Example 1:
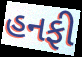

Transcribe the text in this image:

હનફી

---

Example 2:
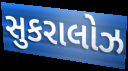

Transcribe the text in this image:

સુકરાલોઝ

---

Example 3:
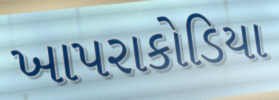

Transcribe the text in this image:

ખાપરાકોડિયા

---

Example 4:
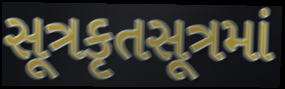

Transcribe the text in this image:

સૂત્રકૃતસૂત્રમાં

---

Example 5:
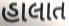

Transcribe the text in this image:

હાલાત